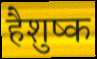
हैशुष्क